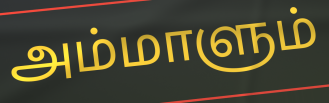
அம்மாளும்